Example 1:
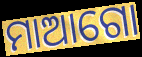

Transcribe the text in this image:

ମାଆଗୋ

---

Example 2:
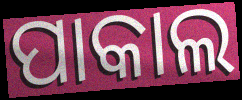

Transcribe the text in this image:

ପାକାଲ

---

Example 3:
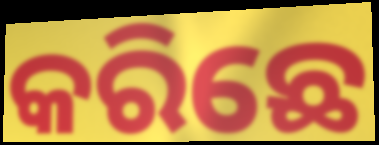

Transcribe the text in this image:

କରିଛେ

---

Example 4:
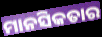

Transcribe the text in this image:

ମାନସିକତାର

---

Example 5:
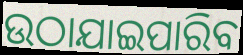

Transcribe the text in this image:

ଉଠାଯାଇପାରିବ